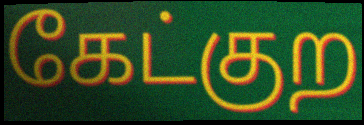
கேட்குற